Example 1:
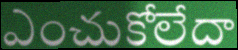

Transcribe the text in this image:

ఎంచుకోలేదా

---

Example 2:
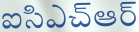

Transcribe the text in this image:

ఐసిఎచ్ఆర్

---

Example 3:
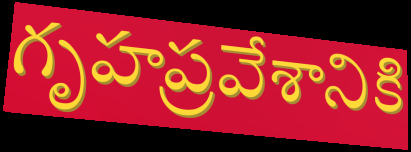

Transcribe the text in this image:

గృహప్రవేశానికి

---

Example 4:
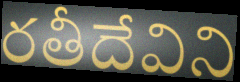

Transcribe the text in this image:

రతీదేవిని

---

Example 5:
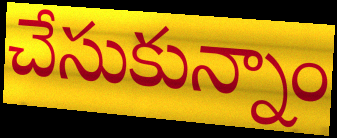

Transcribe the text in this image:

చేసుకున్నాం